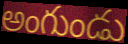
అంగుండు